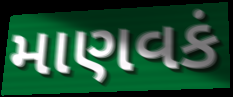
માણવકં